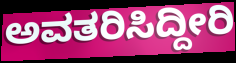
ಅವತರಿಸಿದ್ದೀರಿ